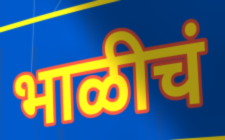
भाळीचं